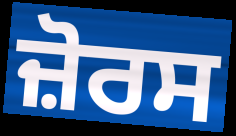
ਜ਼ੋਰਸ